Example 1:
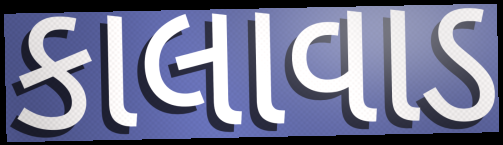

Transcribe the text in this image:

કાલાવાડ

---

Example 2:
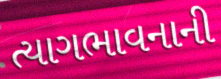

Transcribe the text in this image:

ત્યાગભાવનાની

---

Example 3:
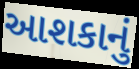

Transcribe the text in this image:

આશકાનું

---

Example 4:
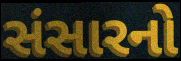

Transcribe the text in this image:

સંસારનો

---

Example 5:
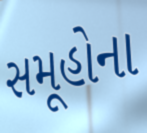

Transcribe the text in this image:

સમૂહોના